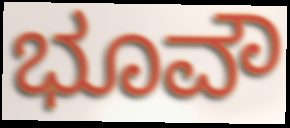
ಭೂವೌ